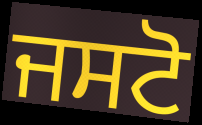
ਜਸਟੋ